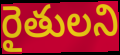
రైతులని